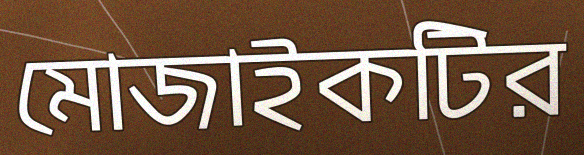
মোজাইকটির